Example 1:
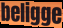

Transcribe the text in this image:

beligge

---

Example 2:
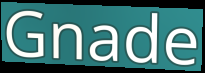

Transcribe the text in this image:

Gnade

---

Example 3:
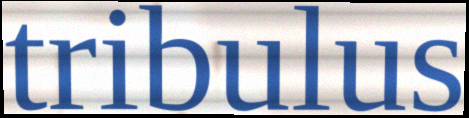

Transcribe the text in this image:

tribulus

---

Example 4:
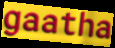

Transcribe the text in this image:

gaatha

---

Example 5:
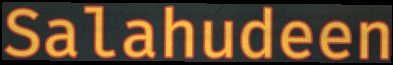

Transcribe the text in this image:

Salahudeen